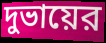
দুভায়ের